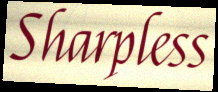
Sharpless